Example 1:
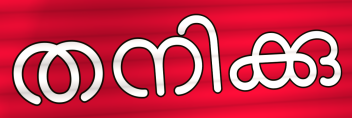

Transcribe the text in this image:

തനിക്കു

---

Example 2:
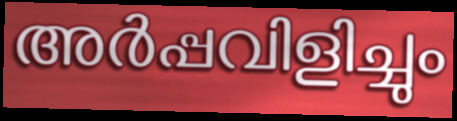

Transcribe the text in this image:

അർപ്പവിളിച്ചും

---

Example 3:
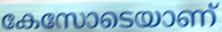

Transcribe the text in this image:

കേസോടെയാണ്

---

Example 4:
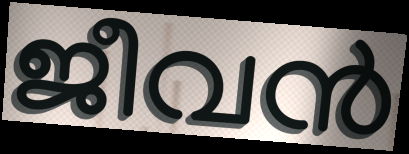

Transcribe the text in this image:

ജീവൻ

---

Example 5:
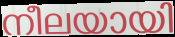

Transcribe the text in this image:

നീലയായി